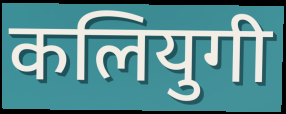
कलियुगी